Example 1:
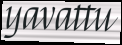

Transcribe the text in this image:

yavattu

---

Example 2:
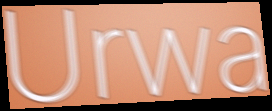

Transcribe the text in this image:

Urwa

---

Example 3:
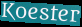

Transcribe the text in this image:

Koester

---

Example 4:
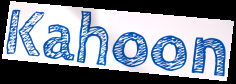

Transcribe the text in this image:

Kahoon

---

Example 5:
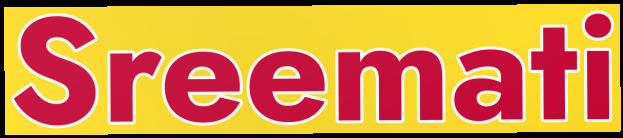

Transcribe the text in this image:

Sreemati